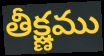
తీక్ష్ణము